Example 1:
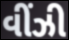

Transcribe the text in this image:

વીંઝી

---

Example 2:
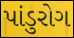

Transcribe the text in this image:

પાંડુરોગ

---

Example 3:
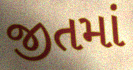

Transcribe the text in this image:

જીતમાં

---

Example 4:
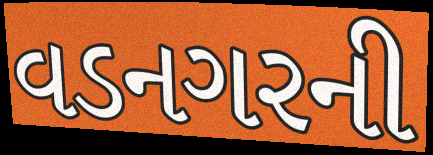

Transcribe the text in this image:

વડનગરની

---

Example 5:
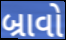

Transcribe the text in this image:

બ્રાવો